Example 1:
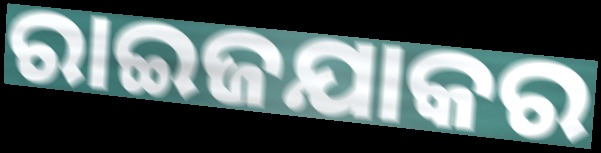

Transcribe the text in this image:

ରାଇଜଯାକର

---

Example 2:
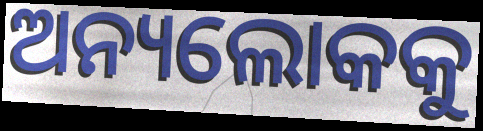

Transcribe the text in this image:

ଅନ୍ୟଲୋକକୁ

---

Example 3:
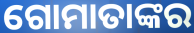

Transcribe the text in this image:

ଗୋମାତାଙ୍କର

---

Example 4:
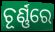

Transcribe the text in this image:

ଚୂର୍ଣ୍ଣରେ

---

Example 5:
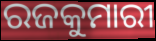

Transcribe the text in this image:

ରଜକୁମାରୀ